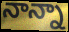
నాన్నా